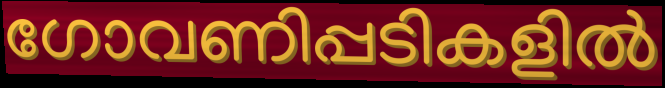
ഗോവണിപ്പടികളിൽ